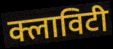
क्लाविटी